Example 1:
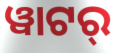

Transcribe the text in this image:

ୱାଟର୍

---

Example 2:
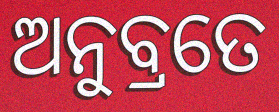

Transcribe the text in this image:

ଅନୁବ୍ରତେ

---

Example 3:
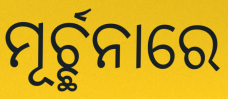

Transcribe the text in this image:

ମୂର୍ଚ୍ଛନାରେ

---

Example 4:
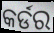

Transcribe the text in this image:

କର୍ଡର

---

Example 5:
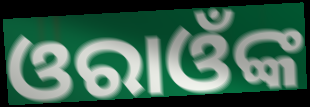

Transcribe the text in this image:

ଓରାଓଁଙ୍କ